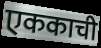
एककाची